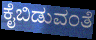
ಕೈಬಿಡುವಂತೆ